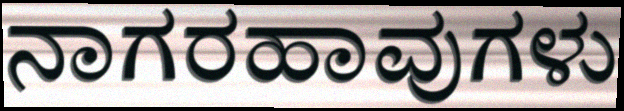
ನಾಗರಹಾವುಗಳು